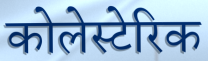
कोलेस्टेरिक